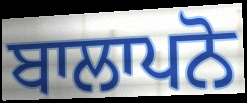
ਬਾਲਾਪਨੋ